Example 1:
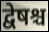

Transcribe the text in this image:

द्वेषश्च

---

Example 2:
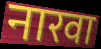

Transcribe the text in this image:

नारवा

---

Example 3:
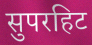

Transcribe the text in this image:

सुपरहिट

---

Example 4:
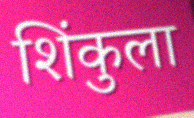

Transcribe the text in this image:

शिंकुला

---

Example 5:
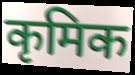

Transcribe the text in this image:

कृमिक